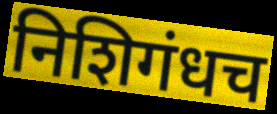
निशिगंधच